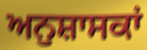
ਅਨੁਸ਼ਾਸਕਾਂ